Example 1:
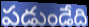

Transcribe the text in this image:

పడుండేది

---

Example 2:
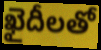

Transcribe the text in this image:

ఖైదీలతో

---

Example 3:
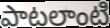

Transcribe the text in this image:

పాటలాంటి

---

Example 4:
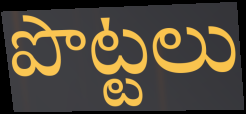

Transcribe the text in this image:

పొట్టలు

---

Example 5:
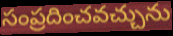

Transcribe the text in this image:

సంప్రదించవచ్చును